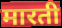
मारती